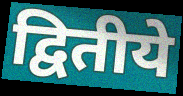
द्वितीये